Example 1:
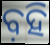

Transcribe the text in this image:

ବ଼ହି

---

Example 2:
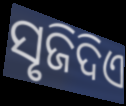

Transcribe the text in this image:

ସୃଜିଦିଏ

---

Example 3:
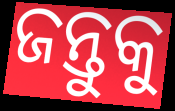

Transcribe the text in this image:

ଜନ୍ତୁକୁ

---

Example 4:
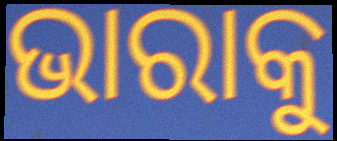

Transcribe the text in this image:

ଭାରାକୁ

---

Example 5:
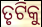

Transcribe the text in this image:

ତୃଟିକୁ